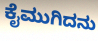
ಕೈಮುಗಿದನು